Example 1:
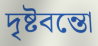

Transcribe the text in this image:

দৃষ্টবন্তো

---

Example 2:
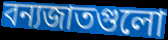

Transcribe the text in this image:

বন্যজাতগুলো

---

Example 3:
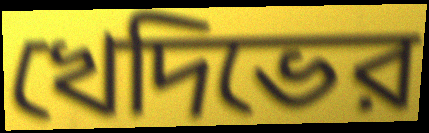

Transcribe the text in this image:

খেদিভের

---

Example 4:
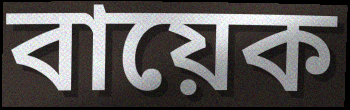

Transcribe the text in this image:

বায়েক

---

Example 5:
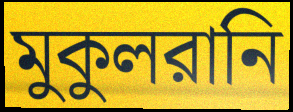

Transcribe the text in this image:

মুকুলরানি